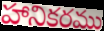
హానికరము